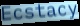
Ecstacy